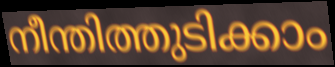
നീന്തിത്തുടിക്കാം